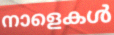
നാളെകൾ